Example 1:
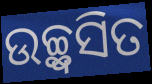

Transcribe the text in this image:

ଉଚ୍ଛ୍ୱସିତ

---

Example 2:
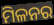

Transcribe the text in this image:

ମିଳନର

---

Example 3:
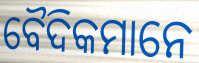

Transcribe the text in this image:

ବୈଦିକମାନେ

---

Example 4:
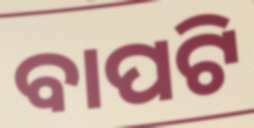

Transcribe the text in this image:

ବାପଟି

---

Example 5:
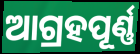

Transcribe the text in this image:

ଆଗ୍ରହପୂର୍ଣ୍ଣ